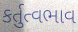
કર્તુત્વભાવ